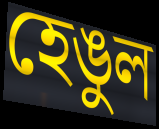
হেঙুল